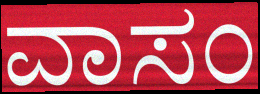
ವಾಸಂ